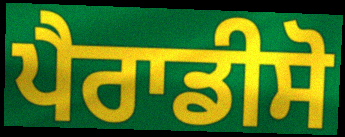
ਪੈਰਾਡੀਸੋ